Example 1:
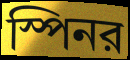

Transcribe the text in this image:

স্পিনর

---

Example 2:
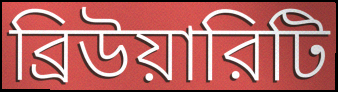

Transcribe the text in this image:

ব্রিউয়ারিটি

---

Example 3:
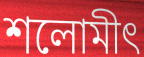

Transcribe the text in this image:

শলোমীৎ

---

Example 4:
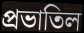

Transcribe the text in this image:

প্রভাতিল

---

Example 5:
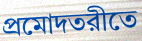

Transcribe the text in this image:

প্রমোদতরীতে